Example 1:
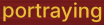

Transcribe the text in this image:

portraying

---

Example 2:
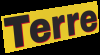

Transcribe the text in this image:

Terre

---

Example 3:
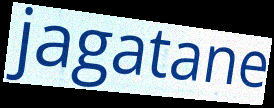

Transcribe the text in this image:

jagatane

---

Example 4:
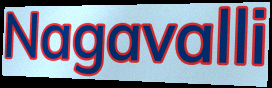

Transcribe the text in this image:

Nagavalli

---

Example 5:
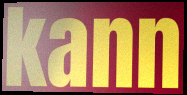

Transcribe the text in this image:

kann